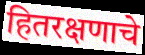
हितरक्षणाचे